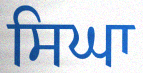
ਸਿਘਾ